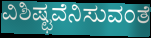
ವಿಶಿಷ್ಟವೆನಿಸುವಂತೆ